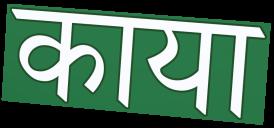
काया